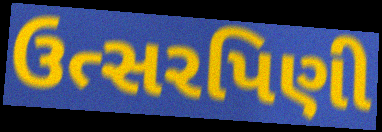
ઉત્સરપિણી